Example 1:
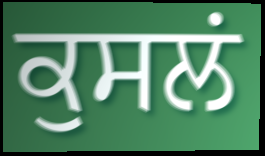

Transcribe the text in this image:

ਕੁਸਲਂ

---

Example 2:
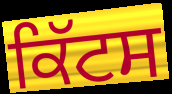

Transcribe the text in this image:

ਕਿੱਟਸ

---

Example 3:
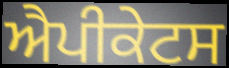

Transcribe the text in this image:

ਐਪੀਕੇਟਸ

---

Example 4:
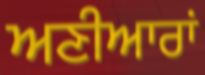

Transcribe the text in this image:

ਅਣੀਆਰਾਂ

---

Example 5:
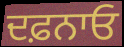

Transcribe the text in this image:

ਦਫ਼ਨਾਓ